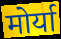
मोर्या